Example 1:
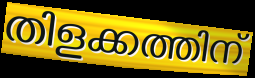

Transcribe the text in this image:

തിളക്കത്തിന്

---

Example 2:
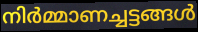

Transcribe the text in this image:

നിർമ്മാണച്ചട്ടങ്ങൾ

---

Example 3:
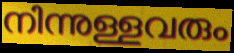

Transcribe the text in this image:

നിന്നുള്ളവരും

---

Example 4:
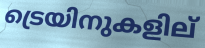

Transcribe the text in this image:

ട്രെയിനുകളില്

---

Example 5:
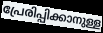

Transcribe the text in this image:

പ്രേരിപ്പിക്കാനുള്ള